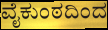
ವೈಕುಂಠದಿಂದ